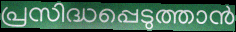
പ്രസിദ്ധപ്പെടുത്താൻ